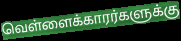
வெள்ளைக்காரர்களுக்கு